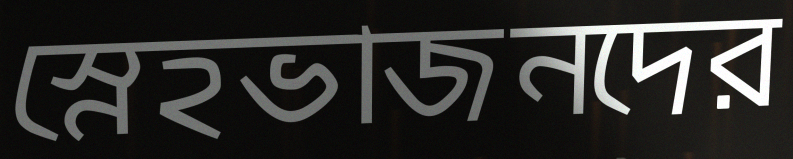
স্নেহভাজনদের